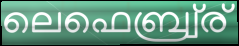
ലെഫെബ്ര്വ്ര്